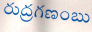
రుద్రగణంబు